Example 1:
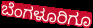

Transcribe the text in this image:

ಬೆಂಗಳೂರಿಗೂ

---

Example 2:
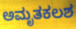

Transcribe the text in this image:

ಅಮೃತಕಲಶ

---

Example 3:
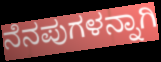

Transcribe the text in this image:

ನೆನಪುಗಳನ್ನಾಗಿ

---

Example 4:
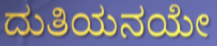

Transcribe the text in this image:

ದುತಿಯನಯೇ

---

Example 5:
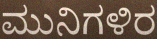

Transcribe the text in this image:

ಮುನಿಗಳಿರ